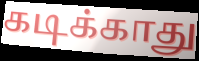
கடிக்காது